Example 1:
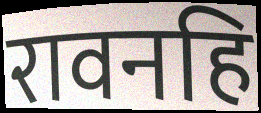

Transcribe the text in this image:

रावनहि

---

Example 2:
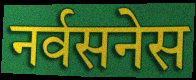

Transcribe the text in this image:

नर्वसनेस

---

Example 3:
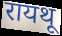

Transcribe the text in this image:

रायथू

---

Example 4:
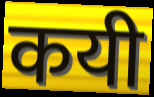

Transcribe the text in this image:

कयी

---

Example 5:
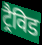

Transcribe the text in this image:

ट्रैविड